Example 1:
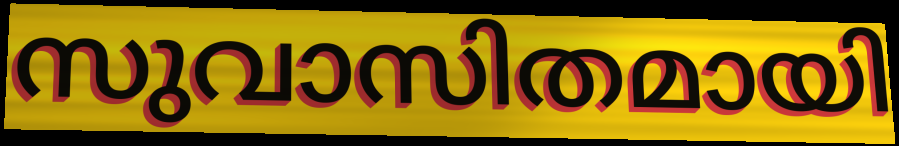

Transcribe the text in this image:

സുവാസിതമായി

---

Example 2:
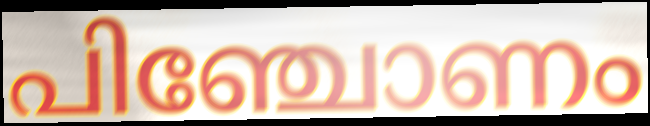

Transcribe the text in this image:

പിഞ്ചോണം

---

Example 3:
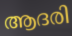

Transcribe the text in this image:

ആദരി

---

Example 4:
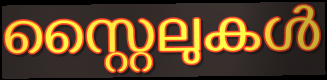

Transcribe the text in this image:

സ്റ്റൈലുകൾ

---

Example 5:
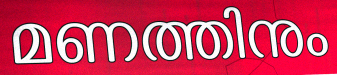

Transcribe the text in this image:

മണത്തിനും